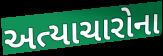
અત્યાચારોના